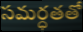
సమర్ధతతో